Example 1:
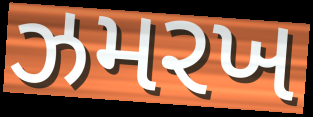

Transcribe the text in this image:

ઝમરખ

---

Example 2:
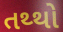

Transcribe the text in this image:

તથ્થો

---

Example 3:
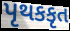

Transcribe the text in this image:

પૃથકકૃત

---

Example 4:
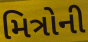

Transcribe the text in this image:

મિત્રોની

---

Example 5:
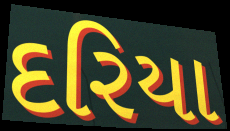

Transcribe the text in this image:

દરિયા